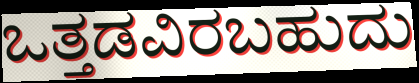
ಒತ್ತಡವಿರಬಹುದು